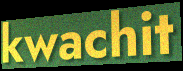
kwachit